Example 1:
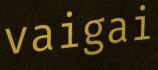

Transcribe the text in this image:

vaigai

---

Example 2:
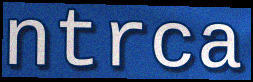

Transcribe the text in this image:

ntrca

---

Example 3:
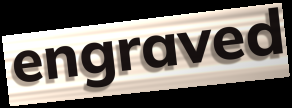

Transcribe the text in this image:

engraved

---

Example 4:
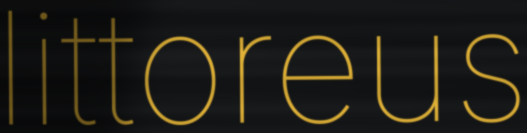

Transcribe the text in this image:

littoreus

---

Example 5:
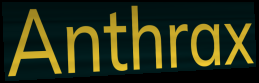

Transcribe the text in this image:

Anthrax